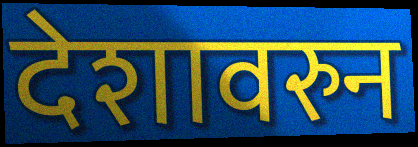
देशावरुन